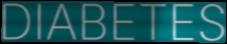
DIABETES